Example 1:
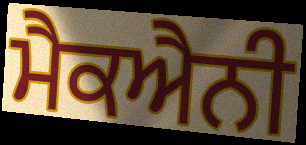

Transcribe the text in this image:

ਮੈਕਐਨੀ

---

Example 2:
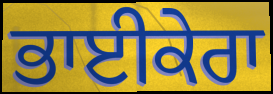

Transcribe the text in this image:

ਭਾਈਕੇਰਾ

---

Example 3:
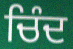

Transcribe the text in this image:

ਚਿੰਦ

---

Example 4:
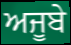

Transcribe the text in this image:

ਅਜੂਬੇ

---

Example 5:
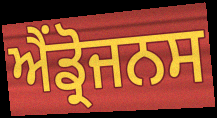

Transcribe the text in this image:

ਐਂਡ੍ਰੋਜਨਸ